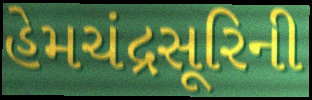
હેમચંદ્રસૂરિની